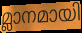
മ്ലാനമായി